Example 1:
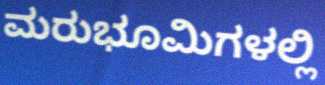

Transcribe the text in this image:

ಮರುಭೂಮಿಗಳಲ್ಲಿ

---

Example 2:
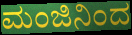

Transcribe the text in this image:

ಮಂಜಿನಿಂದ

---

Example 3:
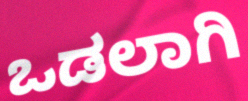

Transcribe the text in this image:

ಒಡಲಾಗಿ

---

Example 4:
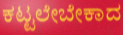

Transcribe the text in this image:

ಕಟ್ಟಲೇಬೇಕಾದ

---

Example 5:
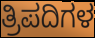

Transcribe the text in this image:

ತ್ರಿಪದಿಗಳ